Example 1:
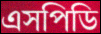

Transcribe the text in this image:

এসপিডি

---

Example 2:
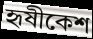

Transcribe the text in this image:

হৃষীকেশ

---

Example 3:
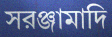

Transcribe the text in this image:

সরঞ্জামাদি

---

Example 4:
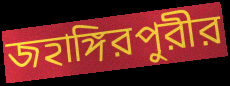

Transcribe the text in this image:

জহাঙ্গিরপুরীর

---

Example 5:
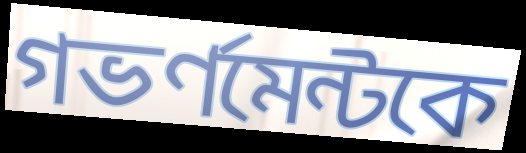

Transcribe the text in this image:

গভর্ণমেন্টকে